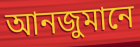
আনজুমানে